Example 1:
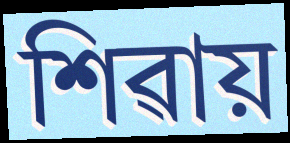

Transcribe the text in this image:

শিৱায়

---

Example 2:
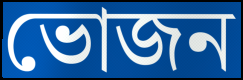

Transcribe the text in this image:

ভোজন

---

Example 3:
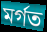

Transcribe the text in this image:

মৰ্গত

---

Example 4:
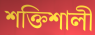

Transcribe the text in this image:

শক্তিশালী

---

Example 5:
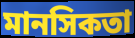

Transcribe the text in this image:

মানসিকতা